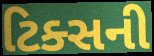
ટિક્સની